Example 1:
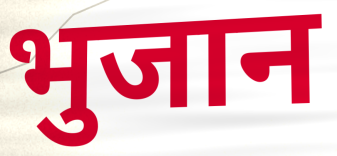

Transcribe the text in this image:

भुजान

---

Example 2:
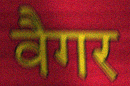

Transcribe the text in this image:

वैगर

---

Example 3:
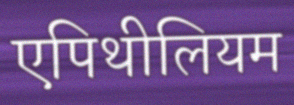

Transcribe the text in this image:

एपिथीलियम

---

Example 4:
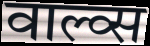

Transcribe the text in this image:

वाल्व्स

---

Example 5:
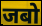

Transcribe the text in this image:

जबो